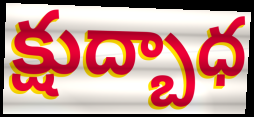
క్షుద్బాధ